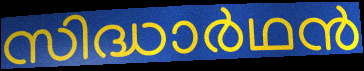
സിദ്ധാർഥൻ